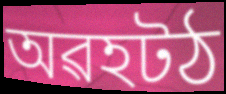
অৱহটঠ